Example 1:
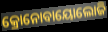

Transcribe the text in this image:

କ୍ରୋନୋବାୟୋଲୋଜି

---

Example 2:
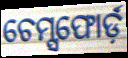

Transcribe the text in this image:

ଚେମ୍ସଫୋର୍ଡ଼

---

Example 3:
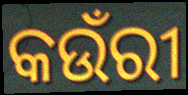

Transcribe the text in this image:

କଉଁରୀ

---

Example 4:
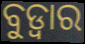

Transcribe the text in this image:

ବୁଡ୍ୱାର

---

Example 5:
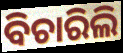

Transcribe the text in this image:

ବିଚାରିଲି